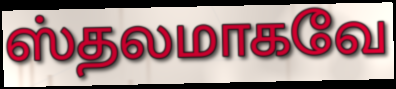
ஸ்தலமாகவே